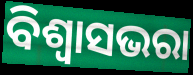
ବିଶ୍ୱାସଭରା